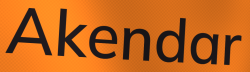
Akendar